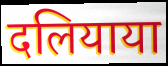
दलियाया